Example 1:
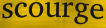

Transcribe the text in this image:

scourge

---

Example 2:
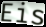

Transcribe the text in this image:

Eis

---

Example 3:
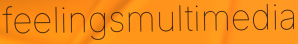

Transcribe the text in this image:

feelingsmultimedia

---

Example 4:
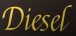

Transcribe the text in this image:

Diesel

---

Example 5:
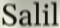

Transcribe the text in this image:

Salil